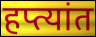
हप्त्यांत